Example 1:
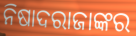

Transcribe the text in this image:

ନିଷାଦରାଜାଙ୍କର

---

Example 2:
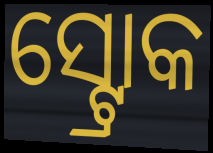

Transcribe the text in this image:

ସ୍ଟ୍ରୋକ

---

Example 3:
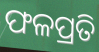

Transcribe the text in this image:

ଫଳପ୍ରତି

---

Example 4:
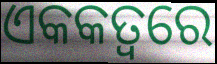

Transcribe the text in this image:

ଏକକତ୍ୱରେ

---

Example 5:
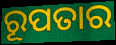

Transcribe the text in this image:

ରୂପତାର